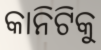
କାନିଟିକୁ